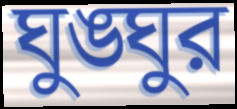
ঘুঙ্ঘুর